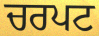
ਚਰਪਟ